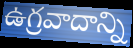
ఉగ్రవాదాన్ని